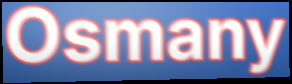
Osmany